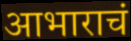
आभाराचं